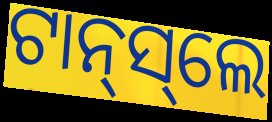
ଟାନ୍‌ସ୍‌ଲେ